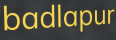
badlapur